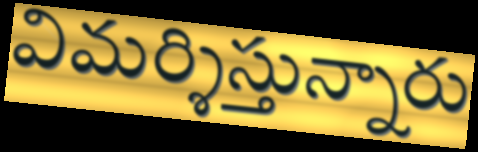
విమర్శిస్తున్నారు